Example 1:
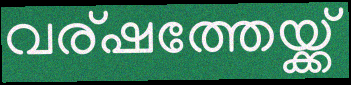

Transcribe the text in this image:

വര്ഷത്തേയ്ക്ക്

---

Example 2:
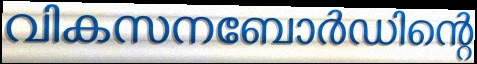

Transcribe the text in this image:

വികസനബോർഡിന്റെ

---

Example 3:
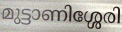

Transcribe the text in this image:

മുട്ടാണിശ്ശേരി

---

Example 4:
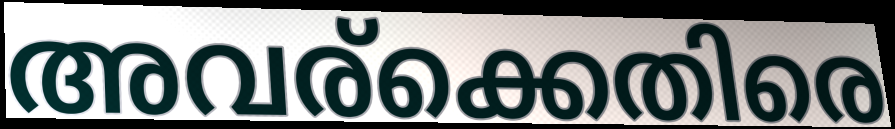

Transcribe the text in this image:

അവര്ക്കെതിരെ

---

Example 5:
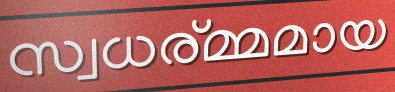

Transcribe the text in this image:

സ്വധര്മ്മമായ